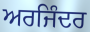
ਅਰਜਿੰਦਰ